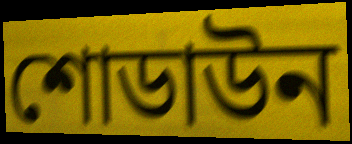
শোডাউন